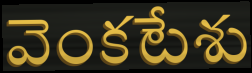
వెంకటేశు